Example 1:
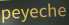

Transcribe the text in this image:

peyeche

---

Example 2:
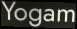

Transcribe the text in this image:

Yogam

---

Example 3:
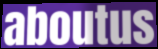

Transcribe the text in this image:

aboutus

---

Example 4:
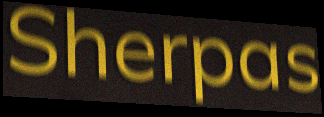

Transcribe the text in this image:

Sherpas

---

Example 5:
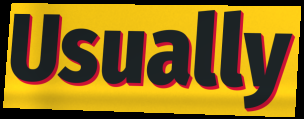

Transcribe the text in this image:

Usually